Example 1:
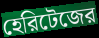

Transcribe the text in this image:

হেরিটেজের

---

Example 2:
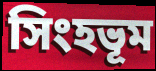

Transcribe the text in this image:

সিংহভূম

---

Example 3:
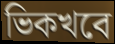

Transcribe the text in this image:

ভিকখবে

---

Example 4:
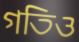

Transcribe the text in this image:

গতিও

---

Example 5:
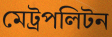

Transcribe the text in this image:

মেট্রপলিটন